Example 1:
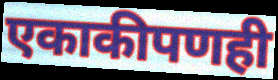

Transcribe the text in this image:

एकाकीपणही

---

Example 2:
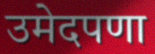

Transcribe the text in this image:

उमेदपणा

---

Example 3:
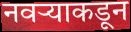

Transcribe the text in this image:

नवऱ्याकडून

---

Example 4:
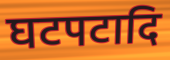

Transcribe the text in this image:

घटपटादि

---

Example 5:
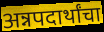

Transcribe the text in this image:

अन्नपदार्थांचा